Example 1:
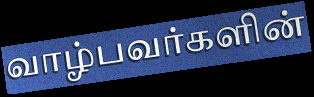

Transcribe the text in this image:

வாழ்பவர்களின்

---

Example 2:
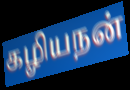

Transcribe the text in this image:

கழியநன்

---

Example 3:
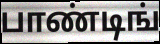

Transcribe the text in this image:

பாண்டிங்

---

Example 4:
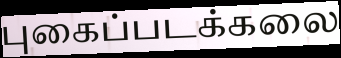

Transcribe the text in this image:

புகைப்படக்கலை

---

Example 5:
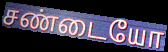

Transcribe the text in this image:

சண்டையோ